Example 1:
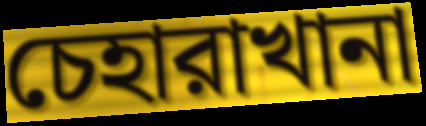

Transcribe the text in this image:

চেহারাখানা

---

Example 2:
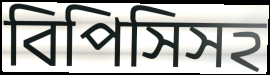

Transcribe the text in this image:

বিপিসিসহ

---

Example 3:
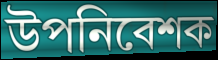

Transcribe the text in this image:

উপনিবেশক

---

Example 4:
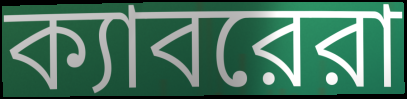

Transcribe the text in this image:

ক্যাবরেরা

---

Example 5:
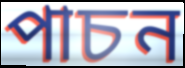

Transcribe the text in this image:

পাচন